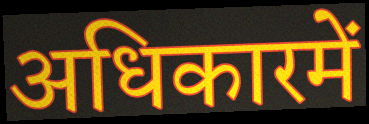
अधिकारमें